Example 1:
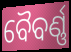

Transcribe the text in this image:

ବୈବର୍ଣ୍ଣ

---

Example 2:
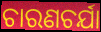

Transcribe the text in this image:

ଚାରଣଚର୍ଯା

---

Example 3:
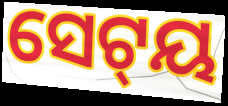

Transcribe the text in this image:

ସେଟ୍‌ୟ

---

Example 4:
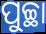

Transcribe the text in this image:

ପୁଚ୍ଛା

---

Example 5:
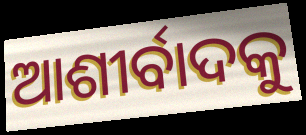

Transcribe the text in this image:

ଆଶୀର୍ବାଦକୁ